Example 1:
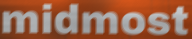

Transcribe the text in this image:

midmost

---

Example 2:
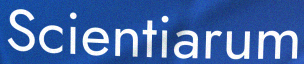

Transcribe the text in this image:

Scientiarum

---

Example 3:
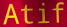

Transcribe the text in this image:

Atif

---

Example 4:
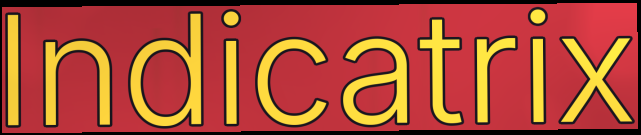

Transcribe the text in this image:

Indicatrix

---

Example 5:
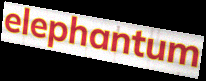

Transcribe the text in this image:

elephantum